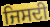
ਜਿਸਦੀ